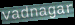
vadnagar